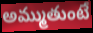
అమ్ముతుంటే